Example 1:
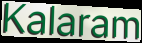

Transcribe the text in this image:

Kalaram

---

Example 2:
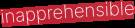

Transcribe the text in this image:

inapprehensible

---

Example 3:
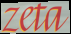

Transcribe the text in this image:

zeta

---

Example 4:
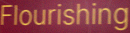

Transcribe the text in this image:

Flourishing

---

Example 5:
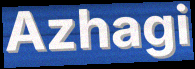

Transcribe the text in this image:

Azhagi